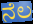
ನೆಲ